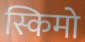
स्किमो